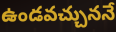
ఉండవచ్చుననే